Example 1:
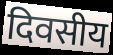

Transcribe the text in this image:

दिवसीय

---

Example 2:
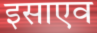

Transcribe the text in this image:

इसाएव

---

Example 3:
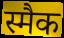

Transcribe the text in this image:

स्मैक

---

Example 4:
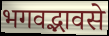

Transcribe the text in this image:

भगवद्भावसे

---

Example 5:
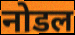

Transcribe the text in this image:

नोडल